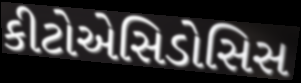
કીટોએસિડોસિસ